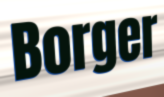
Borger